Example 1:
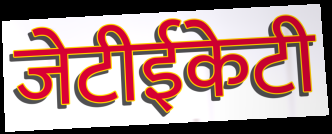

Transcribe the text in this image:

जेटीईकेटी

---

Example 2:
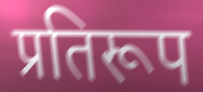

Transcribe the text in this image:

प्रतिरूप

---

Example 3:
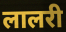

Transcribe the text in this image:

लालरी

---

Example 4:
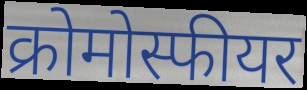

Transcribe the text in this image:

क्रोमोस्फीयर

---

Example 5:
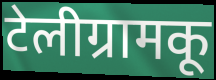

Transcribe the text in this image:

टेलीग्रामकू